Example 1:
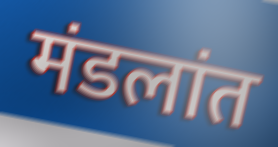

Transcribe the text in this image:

मंडलांत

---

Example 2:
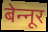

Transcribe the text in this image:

बेन्नूर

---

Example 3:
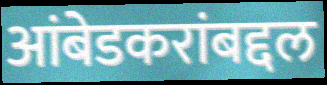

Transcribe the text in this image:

आंबेडकरांबद्दल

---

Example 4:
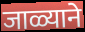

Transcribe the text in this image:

जाळ्याने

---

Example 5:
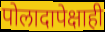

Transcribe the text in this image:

पोलादापेक्षाही